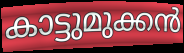
കാട്ടുമുക്കൻ